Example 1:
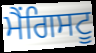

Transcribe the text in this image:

ਮੈਂਗਿਸਟੂ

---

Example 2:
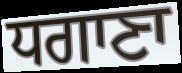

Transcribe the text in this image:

ਧਗਾਣਾ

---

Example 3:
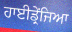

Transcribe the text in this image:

ਹਾਈਡ੍ਰੇਂਜਿਆ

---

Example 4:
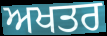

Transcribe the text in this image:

ਅਖਤਰ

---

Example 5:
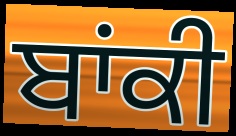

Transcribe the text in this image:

ਬਾਂਕੀ